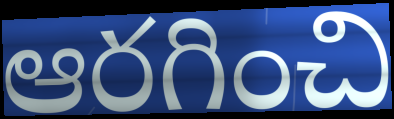
ఆరగించి